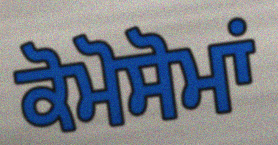
ਕੋਮੋਸੋਮਾਂ